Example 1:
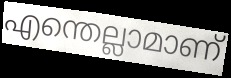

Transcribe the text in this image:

എന്തെല്ലാമാണ്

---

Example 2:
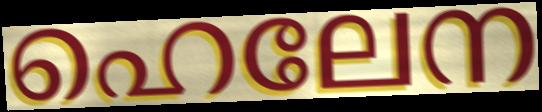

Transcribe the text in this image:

ഹെലേന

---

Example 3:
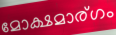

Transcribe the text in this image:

മോക്ഷമാര്ഗം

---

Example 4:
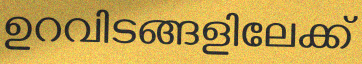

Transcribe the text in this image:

ഉറവിടങ്ങളിലേക്ക്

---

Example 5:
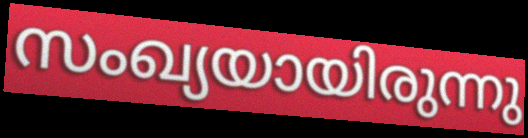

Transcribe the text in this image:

സംഖ്യയായിരുന്നു